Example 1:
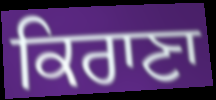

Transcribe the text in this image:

ਕਿਰਾਣਾ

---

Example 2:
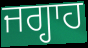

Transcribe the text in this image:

ਜਗ੍ਹਾਹ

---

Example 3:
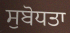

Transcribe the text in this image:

ਸੁਬੋਧਤਾ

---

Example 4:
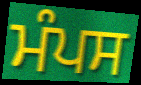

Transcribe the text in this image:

ਮੰਪਸ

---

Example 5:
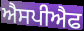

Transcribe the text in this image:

ਐਸਪੀਐਫ